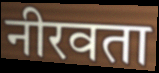
नीरवता